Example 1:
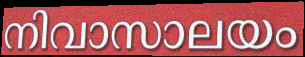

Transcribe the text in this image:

നിവാസാലയം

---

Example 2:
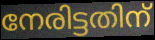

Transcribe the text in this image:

നേരിട്ടതിന്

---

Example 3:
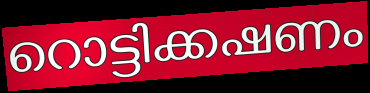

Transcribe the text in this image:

റൊട്ടിക്കഷണം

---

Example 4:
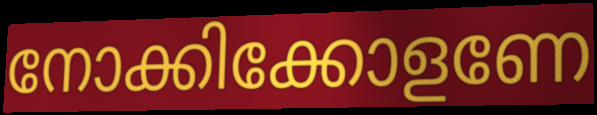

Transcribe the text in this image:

നോക്കിക്കോളണേ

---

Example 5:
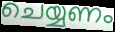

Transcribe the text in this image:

ചെയ്യണം